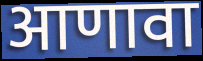
आणावा